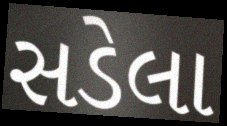
સડેલા